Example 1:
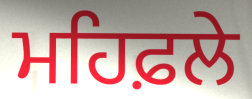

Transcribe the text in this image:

ਮਹਿਫ਼ਲੇ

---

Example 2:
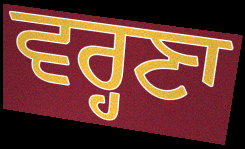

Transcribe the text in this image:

ਵਰ੍ਹਣਾ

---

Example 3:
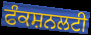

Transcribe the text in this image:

ਫੰਕਸ਼ਨਲਟੀ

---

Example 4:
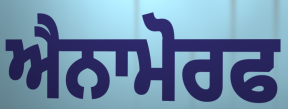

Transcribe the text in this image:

ਐਨਾਮੋਰਫ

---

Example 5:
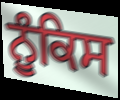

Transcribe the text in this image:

ਨੂੰਕਿਸ